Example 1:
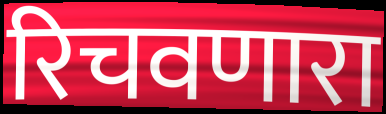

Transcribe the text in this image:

रिचवणारा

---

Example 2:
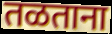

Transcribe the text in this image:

तळताना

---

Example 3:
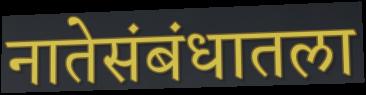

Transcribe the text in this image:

नातेसंबंधातला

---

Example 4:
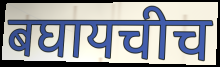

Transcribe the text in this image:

बघायचीच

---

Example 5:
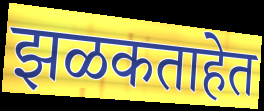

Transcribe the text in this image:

झळकताहेत